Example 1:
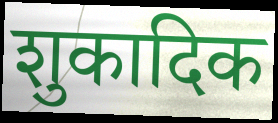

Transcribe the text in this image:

शुकादिक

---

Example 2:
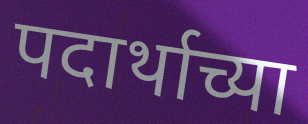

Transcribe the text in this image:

पदार्थाच्या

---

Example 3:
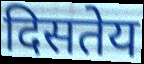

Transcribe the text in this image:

दिसतेय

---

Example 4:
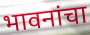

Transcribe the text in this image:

भावनांचा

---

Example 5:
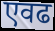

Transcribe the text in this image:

एवढ